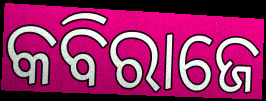
କବିରାଜେ